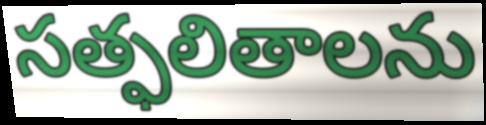
సత్ఫలితాలను